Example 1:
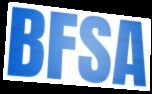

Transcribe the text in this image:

BFSA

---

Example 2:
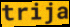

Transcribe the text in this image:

trija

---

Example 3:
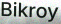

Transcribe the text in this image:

Bikroy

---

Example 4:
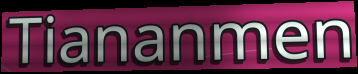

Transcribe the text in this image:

Tiananmen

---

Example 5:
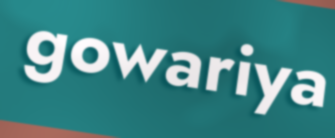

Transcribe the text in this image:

gowariya